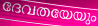
ദേവതയേയും